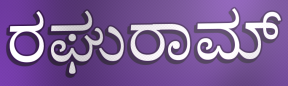
ರಘುರಾಮ್